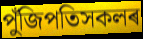
পুঁজিপতিসকলৰ